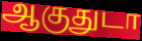
ஆகுதுடா